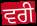
ਵਰੀ